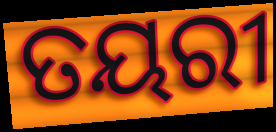
ତୟରୀ